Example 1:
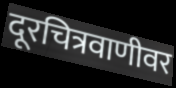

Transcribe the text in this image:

दूरचित्रवाणीवर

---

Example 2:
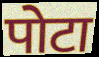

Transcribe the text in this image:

पोटा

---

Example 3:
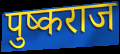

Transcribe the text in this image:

पुष्कराज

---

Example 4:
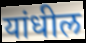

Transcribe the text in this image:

यांधील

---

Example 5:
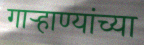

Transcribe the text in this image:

गाऱ्हाण्यांच्या